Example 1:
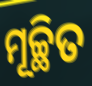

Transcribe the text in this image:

ମୂଚ୍ଛିତ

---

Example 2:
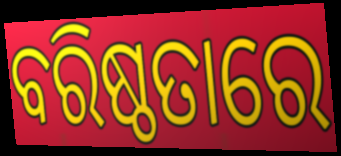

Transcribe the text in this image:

ବରିଷ୍ଠତାରେ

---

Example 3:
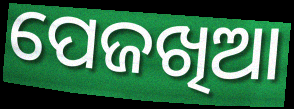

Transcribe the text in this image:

ପେଜଖିଆ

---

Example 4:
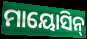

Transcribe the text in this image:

ମାୟୋସିନ୍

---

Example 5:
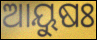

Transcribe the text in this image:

ଆୟୁଷଃ